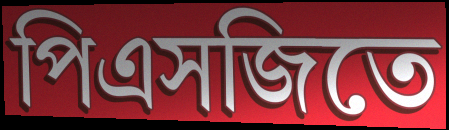
পিএসজিতে